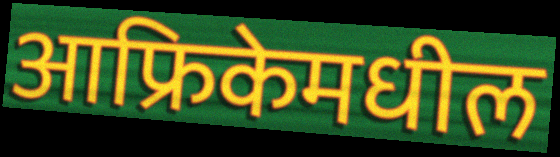
आफ्रिकेमधील